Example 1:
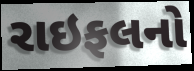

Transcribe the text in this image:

રાઇફલનો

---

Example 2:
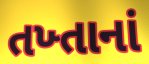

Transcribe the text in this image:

તખ્તાનાં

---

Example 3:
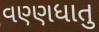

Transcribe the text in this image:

વણ્ણધાતુ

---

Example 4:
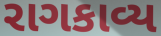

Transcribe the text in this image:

રાગકાવ્ય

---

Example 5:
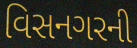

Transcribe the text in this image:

વિસનગરની